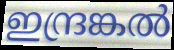
ഇന്ദ്രങ്കൽ